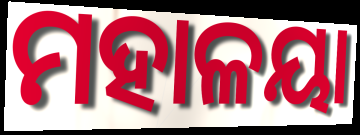
ମହାଳୟା